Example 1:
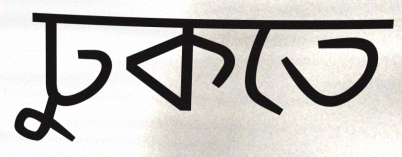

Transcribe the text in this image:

ঢুকতে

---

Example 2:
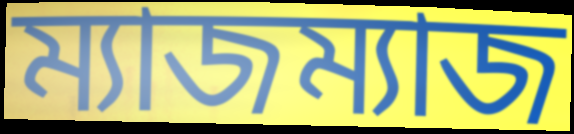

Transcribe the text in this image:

ম্যাজম্যাজ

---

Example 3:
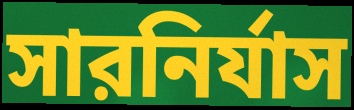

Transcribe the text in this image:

সারনির্যাস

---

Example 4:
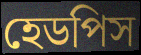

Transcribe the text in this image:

হেডপিস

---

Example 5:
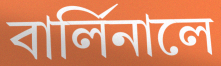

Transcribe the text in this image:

বার্লিনালে